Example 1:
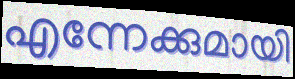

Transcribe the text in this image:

എന്നേക്കുമായി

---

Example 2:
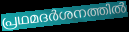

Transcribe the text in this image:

പ്രഥമദർശനത്തിൽ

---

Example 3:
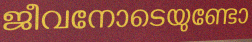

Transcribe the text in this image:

ജീവനോടെയുണ്ടോ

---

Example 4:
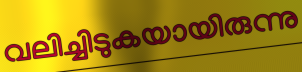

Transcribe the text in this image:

വലിച്ചിടുകയായിരുന്നു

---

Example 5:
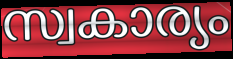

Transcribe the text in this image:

സ്വകാര്യം